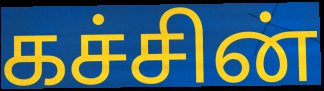
கச்சின்